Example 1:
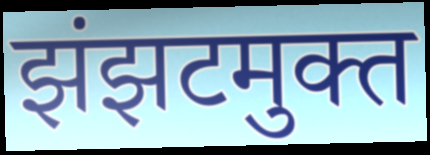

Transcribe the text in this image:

झंझटमुक्त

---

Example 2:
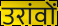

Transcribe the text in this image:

उरांवों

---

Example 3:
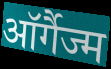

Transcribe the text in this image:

ऑर्गैज्म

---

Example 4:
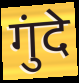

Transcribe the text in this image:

गुंदे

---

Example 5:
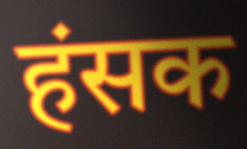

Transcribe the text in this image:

हंसक